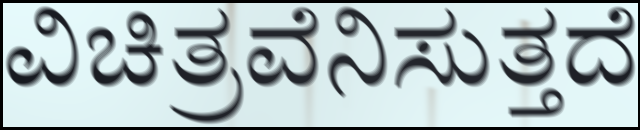
ವಿಚಿತ್ರವೆನಿಸುತ್ತದೆ